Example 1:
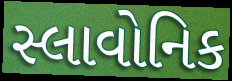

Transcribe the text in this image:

સ્લાવોનિક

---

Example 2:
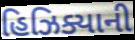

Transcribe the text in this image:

હિઝિક્યાની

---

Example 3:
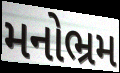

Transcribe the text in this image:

મનોભ્રમ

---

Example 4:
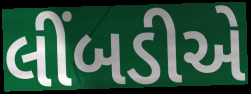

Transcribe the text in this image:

લીંબડીએ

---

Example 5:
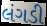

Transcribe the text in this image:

લંગડી